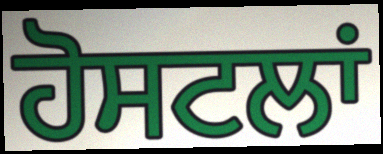
ਹੋਸਟਲਾਂ